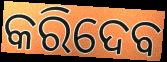
କରିଦେବ